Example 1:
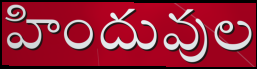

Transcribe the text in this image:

హిందువుల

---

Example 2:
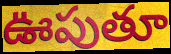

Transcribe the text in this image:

ఊపుతూ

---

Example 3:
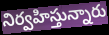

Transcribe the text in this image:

నిర్వహిస్తున్నారు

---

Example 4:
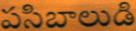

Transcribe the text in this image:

పసిబాలుడి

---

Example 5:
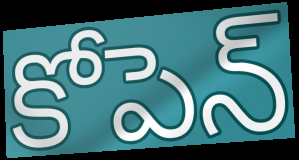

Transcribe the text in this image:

కోపెన్